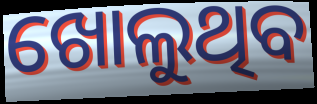
ଖୋଲୁଥିବ